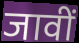
जावीं